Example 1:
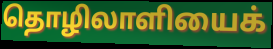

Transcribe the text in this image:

தொழிலாளியைக்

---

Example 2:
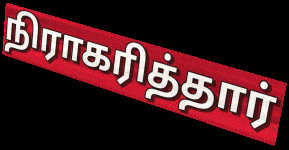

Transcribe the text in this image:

நிராகரித்தார்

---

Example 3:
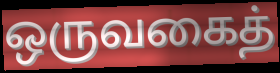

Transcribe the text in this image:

ஒருவகைத்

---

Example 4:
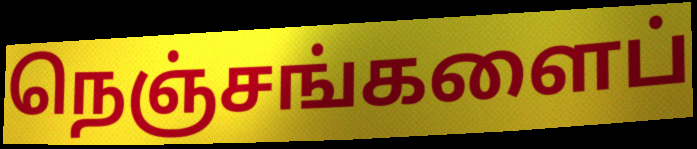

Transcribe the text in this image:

நெஞ்சங்களைப்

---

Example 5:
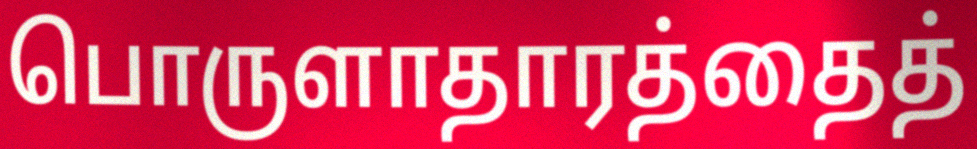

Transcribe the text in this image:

பொருளாதாரத்தைத்